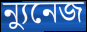
ন্যুনেজ